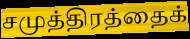
சமுத்திரத்தைக்